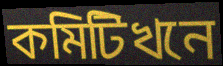
কমিটিখনে